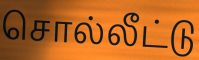
சொல்லீட்டு